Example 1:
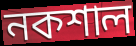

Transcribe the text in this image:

নকশাল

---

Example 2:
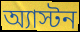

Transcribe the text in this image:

অ্যাস্টন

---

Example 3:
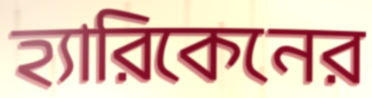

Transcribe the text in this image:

হ্যারিকেনের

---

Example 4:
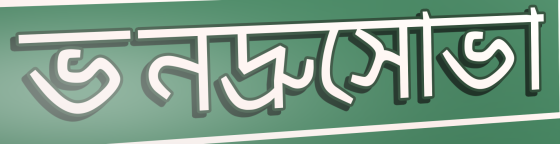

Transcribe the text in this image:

ভনদ্রুসোভা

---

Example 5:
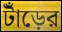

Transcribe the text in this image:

টাঁড়ের